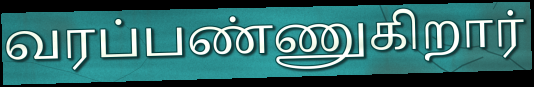
வரப்பண்ணுகிறார்